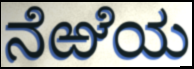
ನೆಱೆಯ